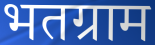
भतग्राम